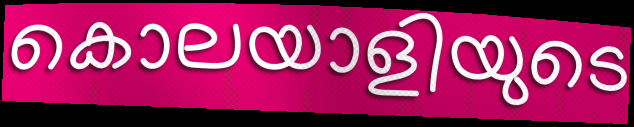
കൊലയാളിയുടെ